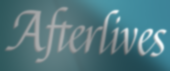
Afterlives